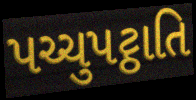
પચ્ચુપટ્ઠાતિ